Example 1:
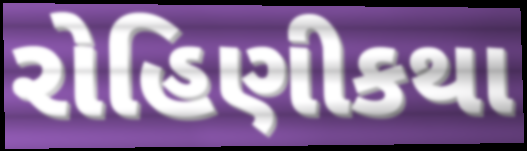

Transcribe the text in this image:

રોહિણીકથા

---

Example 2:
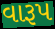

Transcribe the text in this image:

વારૂપ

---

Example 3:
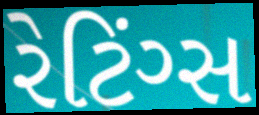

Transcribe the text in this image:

રેટિંગ્સ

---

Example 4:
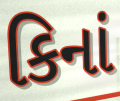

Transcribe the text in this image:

કિનાં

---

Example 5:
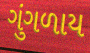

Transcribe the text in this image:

ગુંગળાય